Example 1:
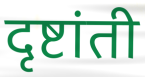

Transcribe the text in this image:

दृष्टांती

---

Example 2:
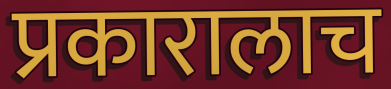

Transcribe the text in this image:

प्रकारालाच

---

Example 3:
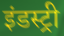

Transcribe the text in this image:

इंडस्ट्री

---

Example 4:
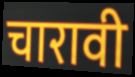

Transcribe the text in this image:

चारावी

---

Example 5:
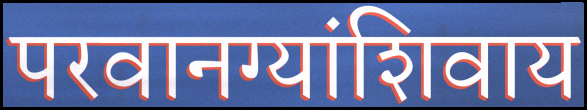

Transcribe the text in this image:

परवानग्यांशिवाय